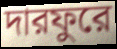
দারফুরে